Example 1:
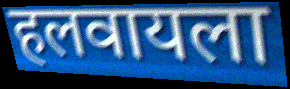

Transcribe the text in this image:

हलवायला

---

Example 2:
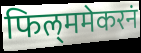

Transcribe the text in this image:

फिल्ममेकरनं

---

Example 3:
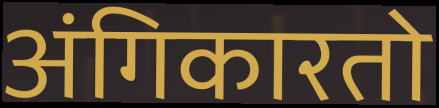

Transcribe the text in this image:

अंगिकारतो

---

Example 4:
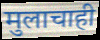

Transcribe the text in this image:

मुलाचाही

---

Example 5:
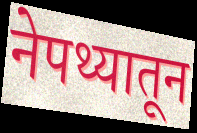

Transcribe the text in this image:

नेपथ्यातून